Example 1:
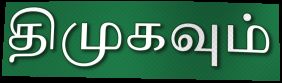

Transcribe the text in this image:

திமுகவும்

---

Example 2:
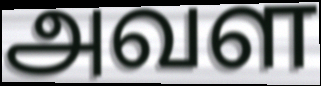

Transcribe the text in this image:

அவள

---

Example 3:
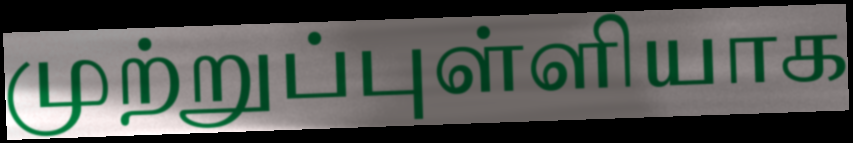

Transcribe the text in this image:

முற்றுப்புள்ளியாக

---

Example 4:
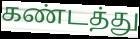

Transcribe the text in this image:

கண்டத்து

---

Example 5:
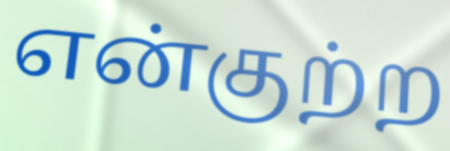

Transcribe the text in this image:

என்குற்ற